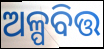
ଅଳ୍ପବିତ୍ତ